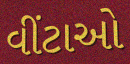
વીંટાઓ